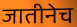
जातीनेच